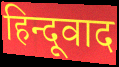
हिन्दूवाद